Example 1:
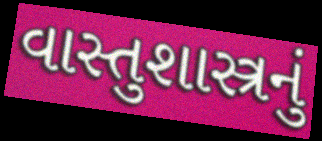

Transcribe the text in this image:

વાસ્તુશાસ્ત્રનું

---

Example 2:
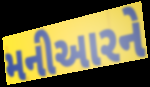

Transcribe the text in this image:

મનીઆરને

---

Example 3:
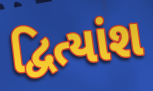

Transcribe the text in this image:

દ્વિત્યાંશ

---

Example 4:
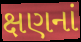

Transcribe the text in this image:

ક્ષણનાં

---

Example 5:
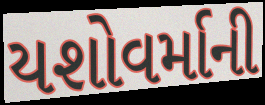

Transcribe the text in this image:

યશોવર્માની